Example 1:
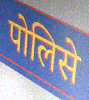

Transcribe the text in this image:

पोलिसे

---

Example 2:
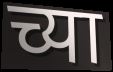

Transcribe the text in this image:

च्या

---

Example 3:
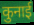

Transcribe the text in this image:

कुनाई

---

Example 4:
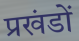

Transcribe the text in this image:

प्रखंडों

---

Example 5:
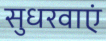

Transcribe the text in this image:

सुधरवाएं